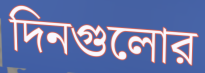
দিনগুলোর